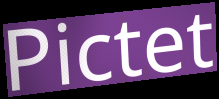
Pictet